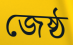
জেষ্ঠ